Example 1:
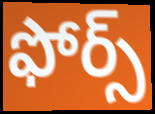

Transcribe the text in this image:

ఫోర్స్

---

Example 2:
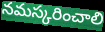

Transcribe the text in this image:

నమస్కరించాలి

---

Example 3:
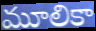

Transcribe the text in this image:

మూలికా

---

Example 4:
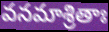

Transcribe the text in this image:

వనమాశ్రితాః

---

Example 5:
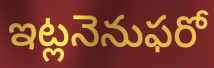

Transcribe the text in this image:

ఇట్లనెనుఫరో